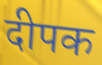
दीपक